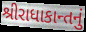
શ્રીરાધાકાન્તનું